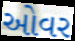
ઓવર